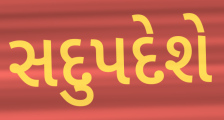
સદુપદેશે